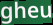
gheu